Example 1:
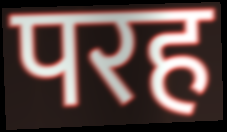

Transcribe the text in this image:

परह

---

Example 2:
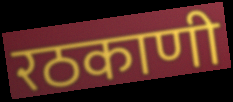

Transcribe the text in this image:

रठकाणी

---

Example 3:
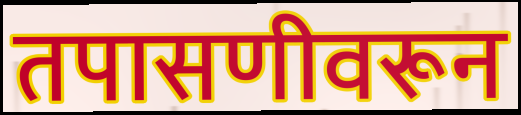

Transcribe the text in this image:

तपासणीवरून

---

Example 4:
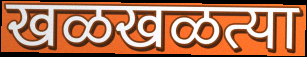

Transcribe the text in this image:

खळखळत्या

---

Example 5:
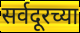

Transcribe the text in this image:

सर्वदूरच्या